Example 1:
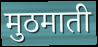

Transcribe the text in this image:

मुठमाती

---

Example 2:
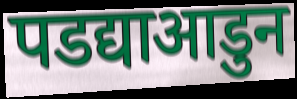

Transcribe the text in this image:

पडद्याआडुन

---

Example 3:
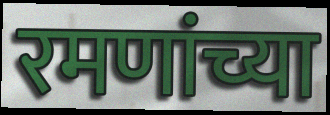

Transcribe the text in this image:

रमणांच्या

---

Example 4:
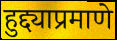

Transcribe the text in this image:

हुद्द्याप्रमाणे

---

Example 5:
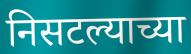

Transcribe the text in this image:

निसटल्याच्या